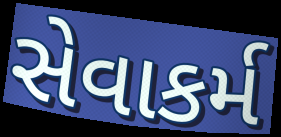
સેવાકર્મ